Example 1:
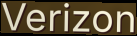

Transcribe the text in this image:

Verizon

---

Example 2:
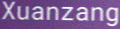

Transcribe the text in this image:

Xuanzang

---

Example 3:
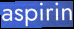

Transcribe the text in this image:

aspirin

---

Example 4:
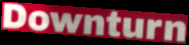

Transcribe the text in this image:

Downturn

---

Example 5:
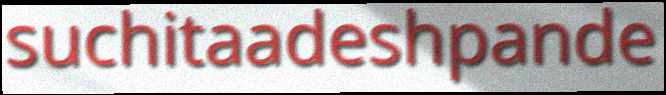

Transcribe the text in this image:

suchitaadeshpande